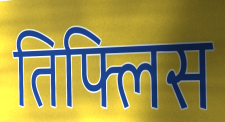
तिफ्लिस